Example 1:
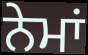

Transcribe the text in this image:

ਨੇਮਾਂ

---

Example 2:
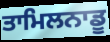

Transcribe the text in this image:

ਤਾਮਿਲਨਾਡੂ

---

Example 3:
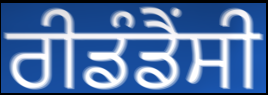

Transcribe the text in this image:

ਰੀਡੰਡੈਂਸੀ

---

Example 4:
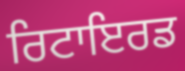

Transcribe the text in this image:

ਰਿਟਾਇਰਡ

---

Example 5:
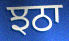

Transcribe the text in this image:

ਝਠਾ